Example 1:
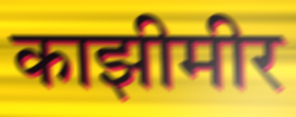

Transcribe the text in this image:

काझीमीर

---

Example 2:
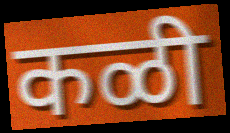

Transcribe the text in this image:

कळी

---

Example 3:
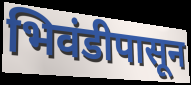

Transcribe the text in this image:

भिवंडीपासून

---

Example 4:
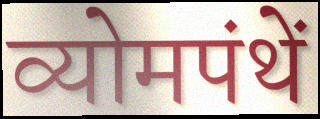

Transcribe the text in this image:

व्योमपंथें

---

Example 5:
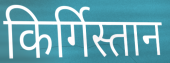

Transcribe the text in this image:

किर्गिस्तान